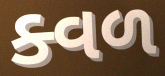
ક્વળ